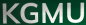
KGMU